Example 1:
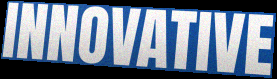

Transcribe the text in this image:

INNOVATIVE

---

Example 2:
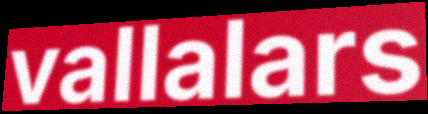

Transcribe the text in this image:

vallalars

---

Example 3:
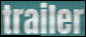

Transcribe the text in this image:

trailer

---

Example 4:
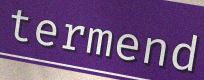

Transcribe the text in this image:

termend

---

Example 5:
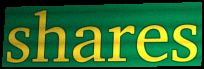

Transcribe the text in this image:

shares